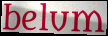
belum